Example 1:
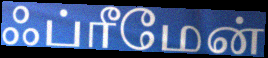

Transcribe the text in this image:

ஃப்ரீமேன்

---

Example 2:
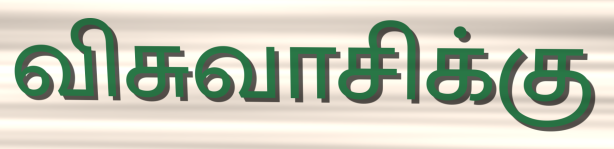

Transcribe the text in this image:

விசுவாசிக்கு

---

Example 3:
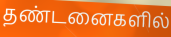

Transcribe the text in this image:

தண்டனைகளில்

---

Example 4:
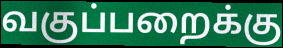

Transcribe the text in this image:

வகுப்பறைக்கு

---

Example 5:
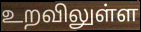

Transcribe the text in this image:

உறவிலுள்ள